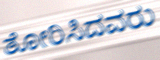
ತೋರಿಸಿದವರು